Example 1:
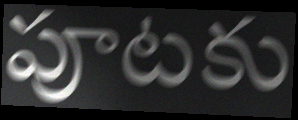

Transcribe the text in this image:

పూటకు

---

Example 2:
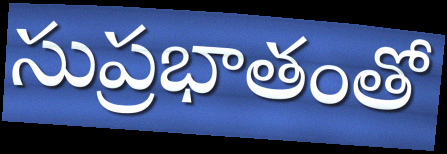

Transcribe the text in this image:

సుప్రభాతంతో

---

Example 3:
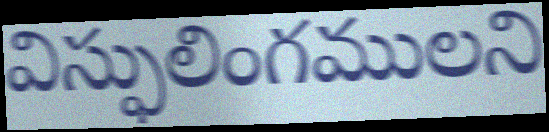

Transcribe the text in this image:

విస్ఫులింగములని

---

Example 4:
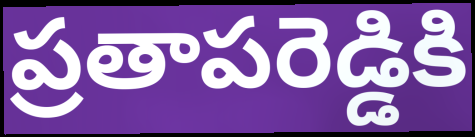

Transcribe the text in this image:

ప్రతాపరెడ్డికి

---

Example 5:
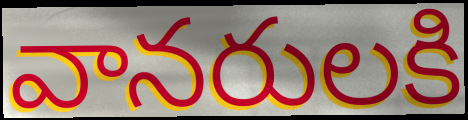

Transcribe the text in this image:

వానరులకి